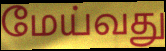
மேய்வது